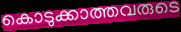
കൊടുക്കാത്തവരുടെ